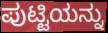
ಪುಟ್ಟಿಯನ್ನು